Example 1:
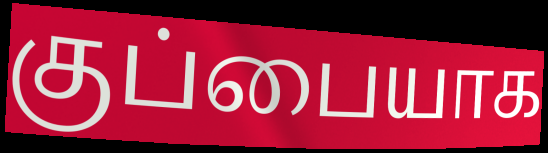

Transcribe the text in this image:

குப்பையாக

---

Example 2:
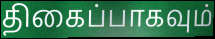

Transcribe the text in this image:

திகைப்பாகவும்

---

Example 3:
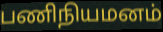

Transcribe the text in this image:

பணிநியமனம்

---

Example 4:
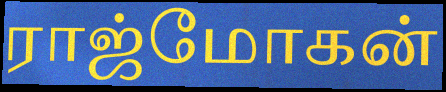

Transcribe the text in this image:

ராஜ்மோகன்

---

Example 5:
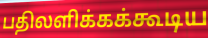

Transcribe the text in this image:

பதிலளிக்கக்கூடிய